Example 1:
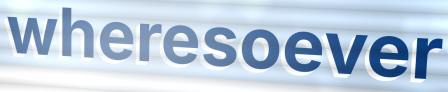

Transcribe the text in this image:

wheresoever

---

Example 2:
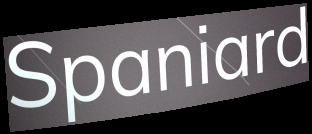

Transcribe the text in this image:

Spaniard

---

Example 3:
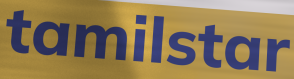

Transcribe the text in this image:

tamilstar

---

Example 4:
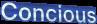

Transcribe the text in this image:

Concious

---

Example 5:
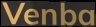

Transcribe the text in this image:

Venba